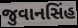
જુવાનસિંહ